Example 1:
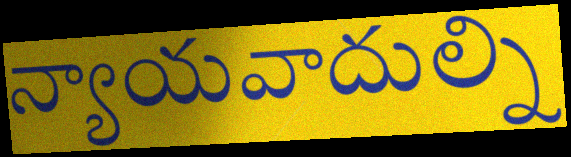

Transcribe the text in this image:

న్యాయవాదుల్ని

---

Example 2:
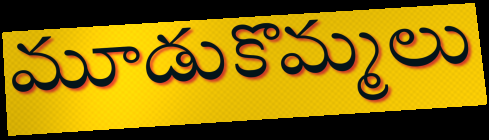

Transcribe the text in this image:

మూడుకొమ్మలు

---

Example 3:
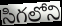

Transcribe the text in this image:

సిగలోని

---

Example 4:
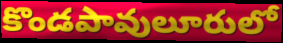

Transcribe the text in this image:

కొండపావులూరులో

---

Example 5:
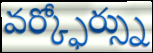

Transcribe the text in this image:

వర్క్ఫోర్స్ను